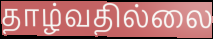
தாழ்வதில்லை